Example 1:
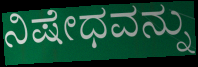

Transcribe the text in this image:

ನಿಷೇಧವನ್ನು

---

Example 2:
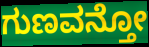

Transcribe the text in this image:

ಗುಣವನ್ತೋ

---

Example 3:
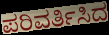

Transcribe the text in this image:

ಪರಿವರ್ತಿಸಿದ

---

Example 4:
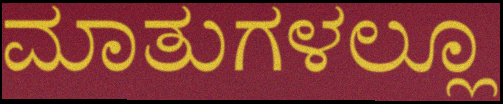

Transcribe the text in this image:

ಮಾತುಗಳಲ್ಲೂ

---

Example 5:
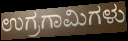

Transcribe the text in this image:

ಉಗ್ರಗಾಮಿಗಳು